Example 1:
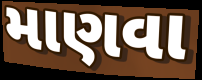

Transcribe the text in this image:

માણવા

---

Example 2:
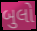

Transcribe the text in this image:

બુલો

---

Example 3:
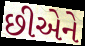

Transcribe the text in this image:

છીએને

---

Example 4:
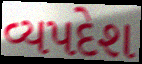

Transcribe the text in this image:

વ્યપદેશ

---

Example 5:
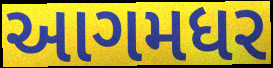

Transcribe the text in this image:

આગમધર